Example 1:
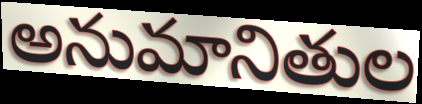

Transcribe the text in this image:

అనుమానితుల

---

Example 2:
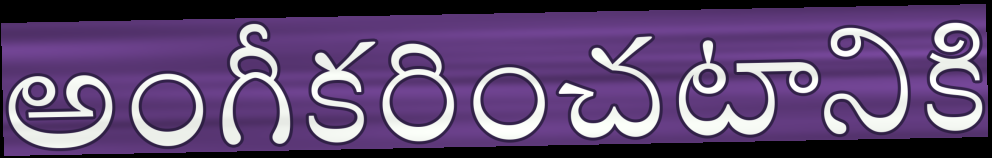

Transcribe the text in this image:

అంగీకరించటానికి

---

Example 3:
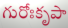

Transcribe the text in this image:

గురోఃకృపా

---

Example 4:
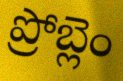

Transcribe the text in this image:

ప్రోబ్లెం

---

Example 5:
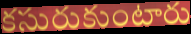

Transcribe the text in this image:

కసురుకుంటారు